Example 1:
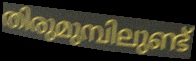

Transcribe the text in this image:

തിരുമുമ്പിലുണ്ട്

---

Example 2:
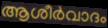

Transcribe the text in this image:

ആശീർവാദം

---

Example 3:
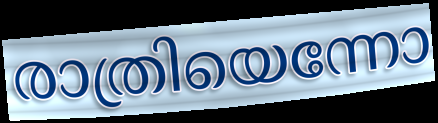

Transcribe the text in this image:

രാത്രിയെന്നോ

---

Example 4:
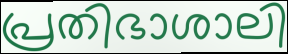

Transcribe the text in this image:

പ്രതിഭാശാലി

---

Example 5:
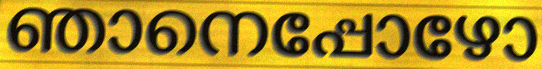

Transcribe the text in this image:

ഞാനെപ്പോഴോ